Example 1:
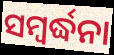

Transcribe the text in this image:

ସମ୍ୱର୍ଦ୍ଧନା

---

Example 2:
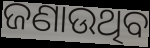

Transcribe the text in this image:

ଜଣାଉଥିବ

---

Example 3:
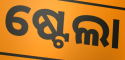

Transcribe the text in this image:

ଷ୍ଟେଲା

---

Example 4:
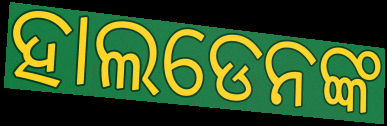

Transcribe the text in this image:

ହାଲଡେନଙ୍କ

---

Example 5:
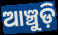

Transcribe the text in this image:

ଆଞ୍ଚୁଡ଼ି